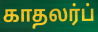
காதலர்ப்